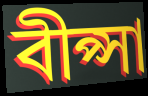
বীপ্সা